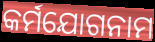
କର୍ମଯୋଗନାମ